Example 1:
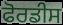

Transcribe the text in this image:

ਫੋਰਡੀਸ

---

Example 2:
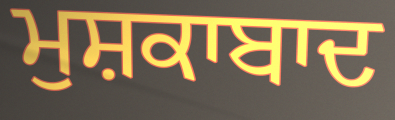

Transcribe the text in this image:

ਮੁਸ਼ਕਾਬਾਦ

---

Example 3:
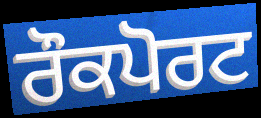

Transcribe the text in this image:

ਰੌਕਪੋਰਟ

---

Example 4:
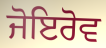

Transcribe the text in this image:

ਜੋਇਰੋਵ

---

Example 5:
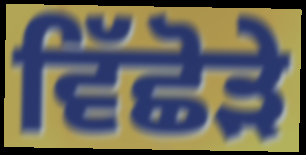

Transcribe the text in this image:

ਵਿੱਛੋੜੇ